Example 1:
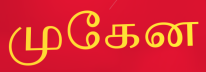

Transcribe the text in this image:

முகேன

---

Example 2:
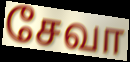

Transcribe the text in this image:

சேவா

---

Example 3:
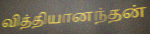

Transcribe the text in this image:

வித்தியானந்தன்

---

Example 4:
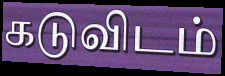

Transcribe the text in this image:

கடுவிடம்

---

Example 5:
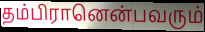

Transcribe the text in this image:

தம்பிரானென்பவரும்